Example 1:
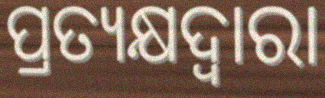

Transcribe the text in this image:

ପ୍ରତ୍ୟକ୍ଷଦ୍ବାରା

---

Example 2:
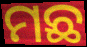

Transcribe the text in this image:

ମଛ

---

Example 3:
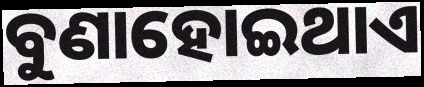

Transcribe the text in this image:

ବୁଣାହୋଇଥାଏ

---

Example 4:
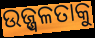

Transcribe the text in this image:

ଉଜ୍ଜ୍ୱଳତାକୁ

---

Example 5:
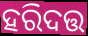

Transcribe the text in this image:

ହରିଦତ୍ତ